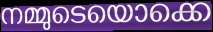
നമ്മുടെയൊക്കെ